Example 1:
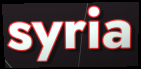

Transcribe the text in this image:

syria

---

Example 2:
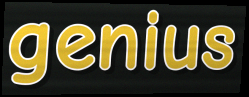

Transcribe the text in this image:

genius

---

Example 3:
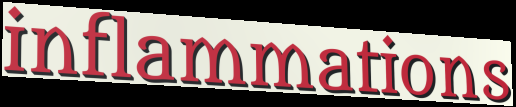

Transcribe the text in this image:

inflammations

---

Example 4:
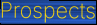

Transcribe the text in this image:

Prospects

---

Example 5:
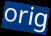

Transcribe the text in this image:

orig